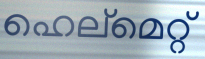
ഹെല്മെറ്റ്